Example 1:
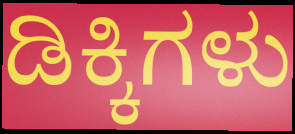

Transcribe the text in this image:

ಡಿಕ್ಕಿಗಳು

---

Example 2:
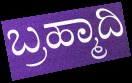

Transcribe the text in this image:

ಬ್ರಹ್ಮಾದಿ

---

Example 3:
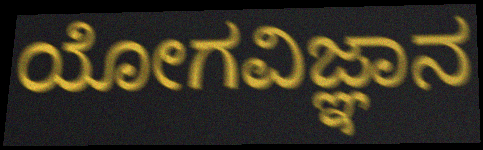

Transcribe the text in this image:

ಯೋಗವಿಜ್ಞಾನ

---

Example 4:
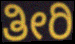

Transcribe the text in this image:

ತೀರಿ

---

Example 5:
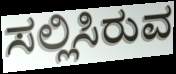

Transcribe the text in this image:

ಸಲ್ಲಿಸಿರುವ